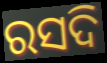
ରସଦି